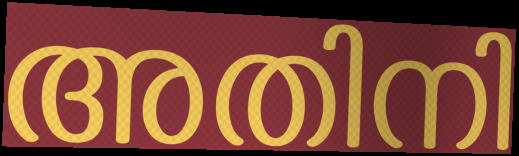
അതിനി